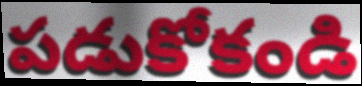
పడుకోకండి